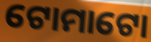
ଟୋମାଟୋ